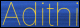
Adithi